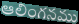
ఆలింగనము